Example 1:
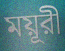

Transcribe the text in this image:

ময়ূরী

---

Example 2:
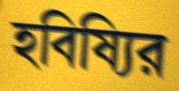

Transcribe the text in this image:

হবিষ্যির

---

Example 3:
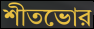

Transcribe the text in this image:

শীতভোর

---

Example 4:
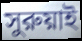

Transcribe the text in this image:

সুরুয়াই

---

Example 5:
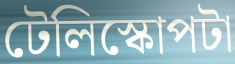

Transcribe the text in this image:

টেলিস্কোপটা